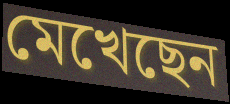
মেখেছেন